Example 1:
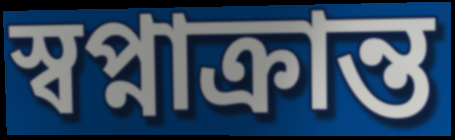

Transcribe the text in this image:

স্বপ্নাক্রান্ত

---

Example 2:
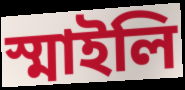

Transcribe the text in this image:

স্মাইলি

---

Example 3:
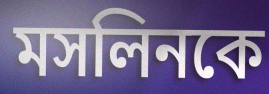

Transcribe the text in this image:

মসলিনকে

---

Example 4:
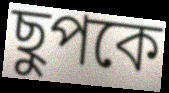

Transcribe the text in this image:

ছুপকে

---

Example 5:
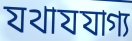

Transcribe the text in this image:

যথাযযাগ্য